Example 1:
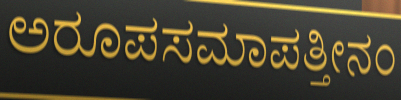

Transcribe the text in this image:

ಅರೂಪಸಮಾಪತ್ತೀನಂ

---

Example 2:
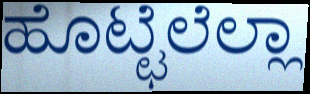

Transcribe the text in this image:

ಹೊಟ್ಟೆಲೆಲ್ಲಾ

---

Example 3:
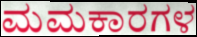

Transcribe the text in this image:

ಮಮಕಾರಗಳ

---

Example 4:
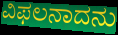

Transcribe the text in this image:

ವಿಫಲನಾದನು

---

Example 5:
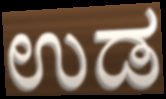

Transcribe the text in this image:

ಉಡ